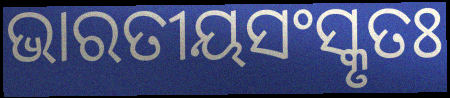
ଭାରତୀୟସଂସ୍କୃତଃ